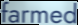
farmed